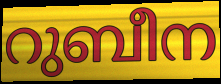
റുബീന